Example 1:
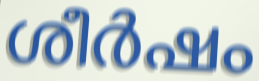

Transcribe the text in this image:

ശീർഷം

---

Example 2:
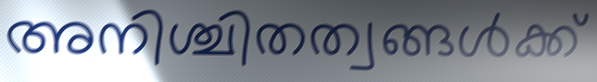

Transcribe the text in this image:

അനിശ്ചിതത്വങ്ങൾക്ക്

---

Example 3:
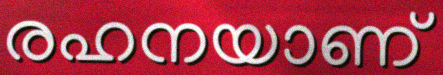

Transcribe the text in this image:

രഹനയാണ്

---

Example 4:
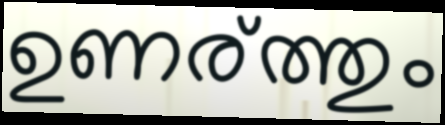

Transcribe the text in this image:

ഉണര്ത്തും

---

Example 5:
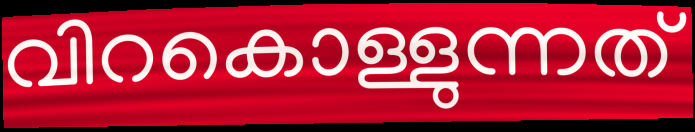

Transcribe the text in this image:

വിറകൊള്ളുന്നത്